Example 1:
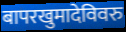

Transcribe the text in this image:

बापरखुमादेविवरु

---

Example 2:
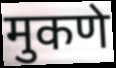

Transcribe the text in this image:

मुकणे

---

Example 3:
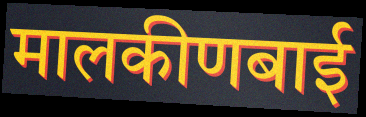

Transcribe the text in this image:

मालकीणबाई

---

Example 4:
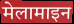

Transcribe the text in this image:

मेलामाइन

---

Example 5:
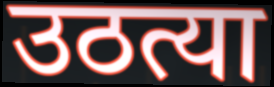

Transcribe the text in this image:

उठत्या